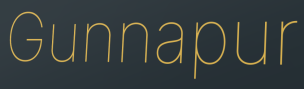
Gunnapur